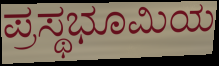
ಪ್ರಸ್ಥಭೂಮಿಯ